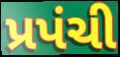
પ્રપંચી